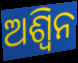
ଅଶ୍ଵିନ